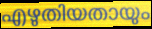
എഴുതിയതായും